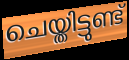
ചെയ്തിട്ടുണ്ട്